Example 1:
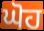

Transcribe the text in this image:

ਘੋਹ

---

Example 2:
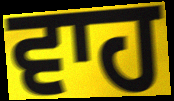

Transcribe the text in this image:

ਵਾਹ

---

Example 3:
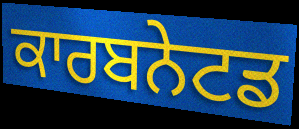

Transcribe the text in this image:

ਕਾਰਬਨੇਟਡ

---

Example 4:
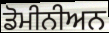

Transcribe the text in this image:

ਡੋਮੀਨੀਅਨ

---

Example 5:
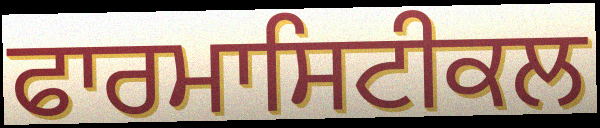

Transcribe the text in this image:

ਫਾਰਮਾਸਿਟੀਕਲ